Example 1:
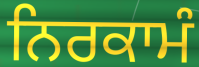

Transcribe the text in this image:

ਨਿਰਕਾਮੰ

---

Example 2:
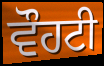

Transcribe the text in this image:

ਵੌਹਟੀ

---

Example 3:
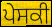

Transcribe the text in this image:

ਪੇਸਕੀ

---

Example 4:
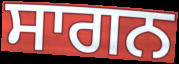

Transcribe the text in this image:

ਸਾਗਨ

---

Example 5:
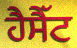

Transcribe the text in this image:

ਹੈਸੈੱਟ